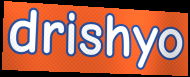
drishyo